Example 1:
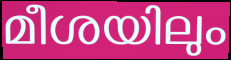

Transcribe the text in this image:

മീശയിലും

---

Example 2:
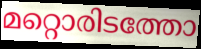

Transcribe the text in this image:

മറ്റൊരിടത്തോ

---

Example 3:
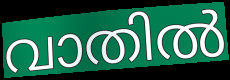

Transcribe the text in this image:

വാതിൽ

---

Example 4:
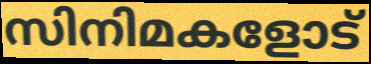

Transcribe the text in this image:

സിനിമകളോട്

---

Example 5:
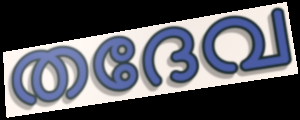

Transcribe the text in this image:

തദേവ